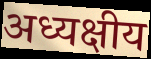
अध्यक्षीय